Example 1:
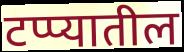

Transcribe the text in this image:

टप्प्यातील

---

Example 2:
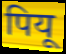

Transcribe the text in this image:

पियू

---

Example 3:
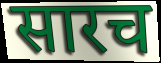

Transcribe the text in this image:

सारच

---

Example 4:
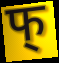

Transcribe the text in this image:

फ्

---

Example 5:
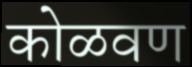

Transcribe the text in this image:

कोळवण